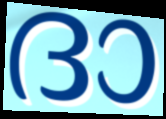
ദാ